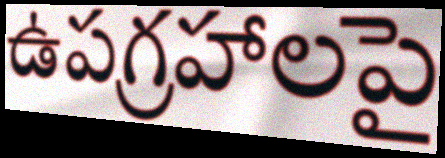
ఉపగ్రహాలపై